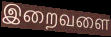
இறைவளை